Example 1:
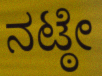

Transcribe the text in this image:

ನಟ್ಠೇ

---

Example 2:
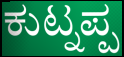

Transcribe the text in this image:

ಕುಟ್ನಪ್ಪ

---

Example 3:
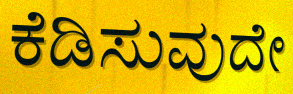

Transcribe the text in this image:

ಕೆಡಿಸುವುದೇ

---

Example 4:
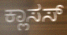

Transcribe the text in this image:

ಕ್ಲಾಸಸ್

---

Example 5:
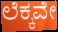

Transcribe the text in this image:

ಲೆಕ್ಕವೇ